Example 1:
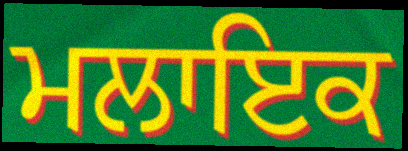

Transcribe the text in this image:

ਮਲਾਇਕ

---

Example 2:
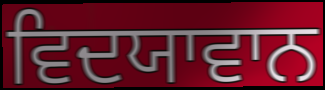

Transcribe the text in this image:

ਵਿਦਯਾਵਾਨ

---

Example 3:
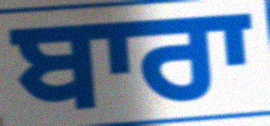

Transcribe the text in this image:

ਬਾਰਾ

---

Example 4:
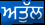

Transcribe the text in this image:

ਅਤੁੱਲ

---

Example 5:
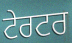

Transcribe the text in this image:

ਟੇਰਟਰ